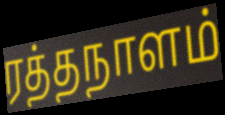
ரத்தநாளம்